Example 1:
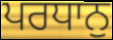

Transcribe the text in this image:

ਪਰਧਾਨੁ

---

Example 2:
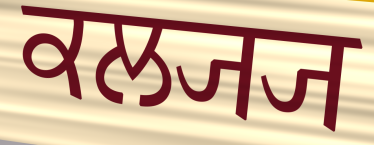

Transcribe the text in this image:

ਕਲ੍ਯ੍ਯ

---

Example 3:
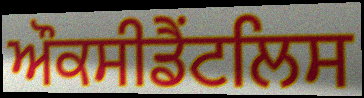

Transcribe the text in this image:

ਔਕਸੀਡੈਂਟਲਿਸ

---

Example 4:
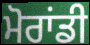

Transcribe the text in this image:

ਮੋਰਾਂਡੀ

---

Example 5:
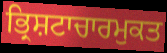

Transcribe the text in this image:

ਭ੍ਰਿਸ਼ਟਾਚਾਰਮੁਕਤ